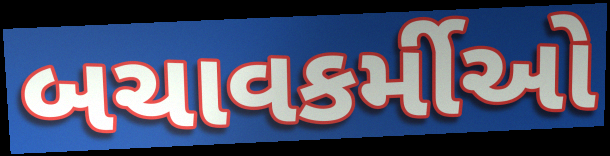
બચાવકર્મીઓ